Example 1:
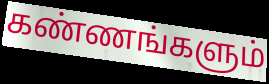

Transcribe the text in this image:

கண்ணங்களும்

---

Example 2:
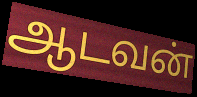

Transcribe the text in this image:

ஆடவன்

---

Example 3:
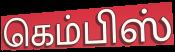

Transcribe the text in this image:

கெம்பிஸ்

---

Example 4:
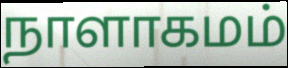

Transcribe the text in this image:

நாளாகமம்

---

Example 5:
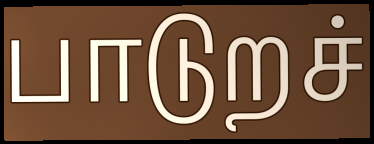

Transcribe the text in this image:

பாடுறச்